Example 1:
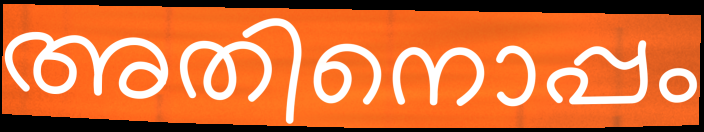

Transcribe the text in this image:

അതിനൊപ്പം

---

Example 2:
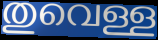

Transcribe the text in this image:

തുവെള്ള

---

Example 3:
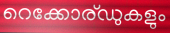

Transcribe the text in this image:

റെക്കോര്ഡുകളും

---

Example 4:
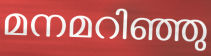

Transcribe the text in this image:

മനമറിഞ്ഞു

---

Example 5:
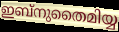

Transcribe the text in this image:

ഇബ്നുതൈമിയ്യ